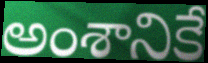
అంశానికే